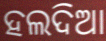
ହଲଦିଆ